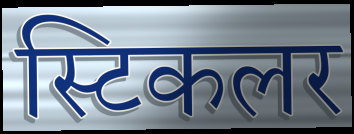
स्टिकलर